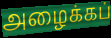
அழைக்கப்